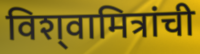
विश्वामित्रांची